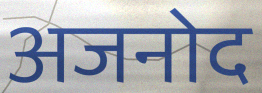
अजनोद